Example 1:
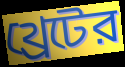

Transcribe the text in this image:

থ্রেটের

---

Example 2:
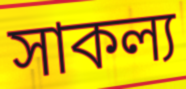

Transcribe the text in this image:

সাকল্য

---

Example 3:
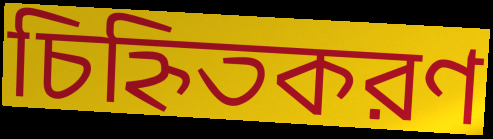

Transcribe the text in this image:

চিহ্নিতকরণ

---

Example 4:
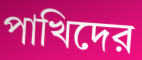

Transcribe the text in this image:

পাখিদের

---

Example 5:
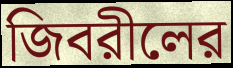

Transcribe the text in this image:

জিবরীলের